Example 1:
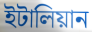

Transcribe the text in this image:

ইটালিয়ান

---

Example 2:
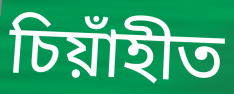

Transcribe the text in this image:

চিয়াঁহীত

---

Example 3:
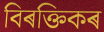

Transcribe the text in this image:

বিৰক্তিকৰ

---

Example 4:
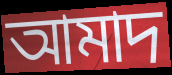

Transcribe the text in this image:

আমাদ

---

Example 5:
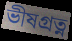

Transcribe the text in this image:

ভীষগ্ৰত্ন